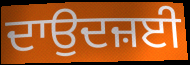
ਦਾਉਦਜ਼ਈ